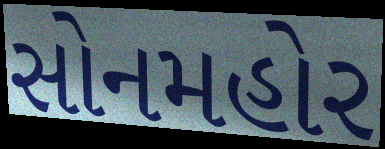
સોનમહોર